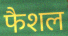
फैशल